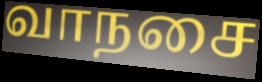
வாநசை